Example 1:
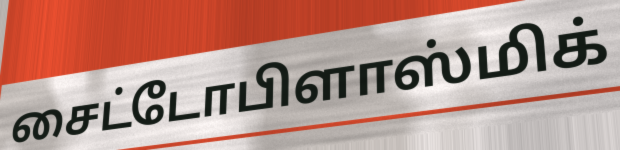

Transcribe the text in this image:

சைட்டோபிளாஸ்மிக்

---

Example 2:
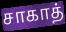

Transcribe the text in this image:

சாகாத்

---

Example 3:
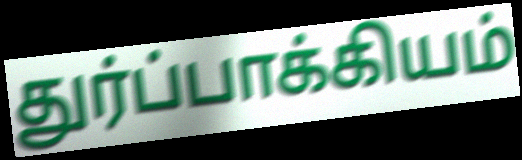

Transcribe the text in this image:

துர்ப்பாக்கியம்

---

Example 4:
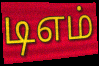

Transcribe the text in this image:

டிஎம்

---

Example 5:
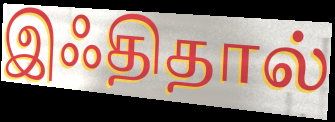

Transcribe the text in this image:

இஃதிதால்